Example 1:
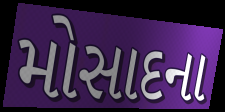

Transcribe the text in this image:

મોસાદના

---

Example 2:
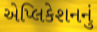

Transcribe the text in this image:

એપ્લિકેશનનું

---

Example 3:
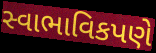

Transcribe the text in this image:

સ્વાભાવિકપણે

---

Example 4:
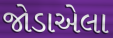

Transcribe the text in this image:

જોડાએલા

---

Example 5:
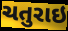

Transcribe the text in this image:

ચતુરાઇ